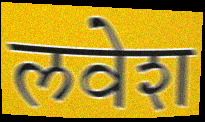
लवेश